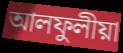
আলফুলীয়া